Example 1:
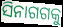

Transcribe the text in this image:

ସିନାଗଗକୁ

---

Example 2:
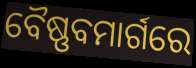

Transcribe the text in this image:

ବୈଷ୍ଣବମାର୍ଗରେ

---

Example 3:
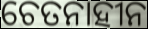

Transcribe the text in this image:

ଚେତନାହୀନ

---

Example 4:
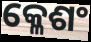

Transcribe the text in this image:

କ୍ଳେଶଂ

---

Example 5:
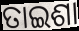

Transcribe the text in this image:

ତାଇଶା